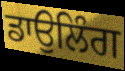
ਡਾਉਲਿੰਗ